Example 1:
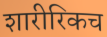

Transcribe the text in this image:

शारीरिकच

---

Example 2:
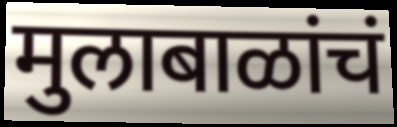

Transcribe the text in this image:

मुलाबाळांचं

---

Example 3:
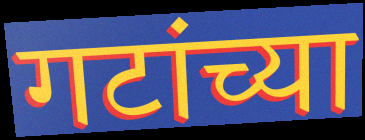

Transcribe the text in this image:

गटांच्या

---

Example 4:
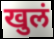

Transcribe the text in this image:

खुलं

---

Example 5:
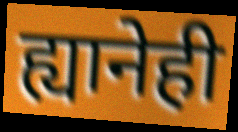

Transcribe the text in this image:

ह्यानेही